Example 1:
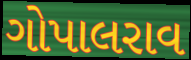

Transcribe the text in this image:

ગોપાલરાવ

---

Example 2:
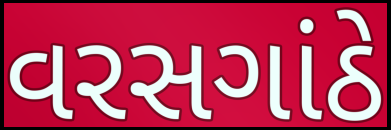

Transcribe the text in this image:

વરસગાંઠે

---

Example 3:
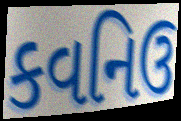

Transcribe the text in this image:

કવનિઉ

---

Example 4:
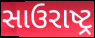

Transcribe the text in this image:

સાઉરાષ્ટ્ર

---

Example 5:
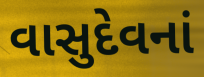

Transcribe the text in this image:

વાસુદેવનાં